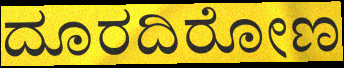
ದೂರದಿರೋಣ